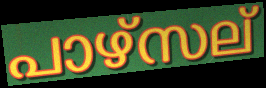
പാഴ്സല്